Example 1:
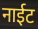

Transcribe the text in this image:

नाईट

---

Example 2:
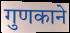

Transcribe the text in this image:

गुणकाने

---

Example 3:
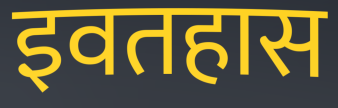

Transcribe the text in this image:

इवतहास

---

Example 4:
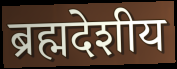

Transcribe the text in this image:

ब्रह्मदेशीय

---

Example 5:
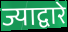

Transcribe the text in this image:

ज्याद्वारे